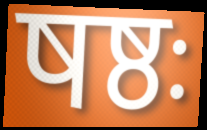
षष्ठः